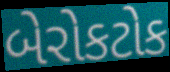
બેરોકટોક